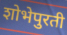
शोभेपुरती